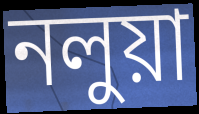
নলুয়া